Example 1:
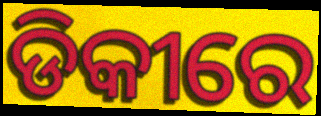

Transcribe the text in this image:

ଡିକୀରେ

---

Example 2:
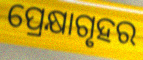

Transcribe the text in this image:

ପ୍ରେକ୍ଷାଗୃହର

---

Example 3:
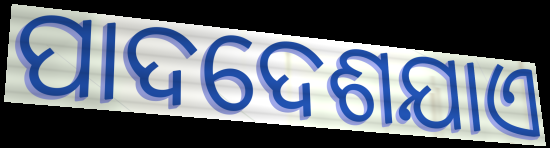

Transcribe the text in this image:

ପାଦଦେଶଯାଏ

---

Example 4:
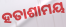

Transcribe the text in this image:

ହତାଶାମୟ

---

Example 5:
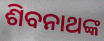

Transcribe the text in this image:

ଶିବନାଥଙ୍କ